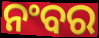
ନଂବର